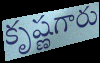
కృష్ణగారు